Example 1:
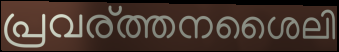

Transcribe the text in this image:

പ്രവര്ത്തനശൈലി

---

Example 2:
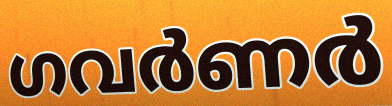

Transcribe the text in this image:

ഗവർണർ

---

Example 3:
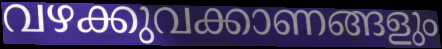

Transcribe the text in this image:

വഴക്കുവക്കാണങ്ങളും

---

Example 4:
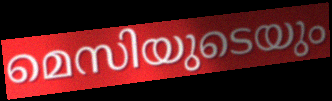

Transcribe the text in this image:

മെസിയുടെയും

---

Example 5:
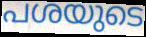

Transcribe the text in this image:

പശയുടെ